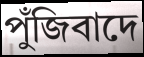
পুঁজিবাদে